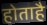
होताहै